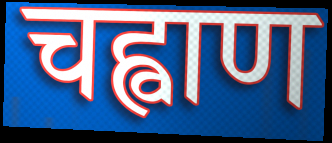
चह्वाण